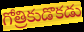
గోత్రికుడొకడు